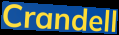
Crandell